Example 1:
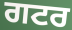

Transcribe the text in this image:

ਗਟਰ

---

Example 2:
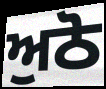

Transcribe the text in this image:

ਅੁਠੋ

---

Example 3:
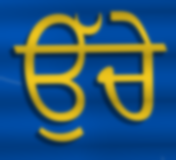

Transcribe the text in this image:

ਉੱਚੇ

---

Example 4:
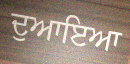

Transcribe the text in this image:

ਦੁਆਇਆ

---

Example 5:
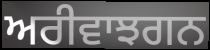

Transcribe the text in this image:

ਅਰੀਵਾਝਗਨ